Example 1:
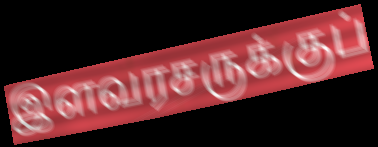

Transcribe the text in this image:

இளவரசருக்குப்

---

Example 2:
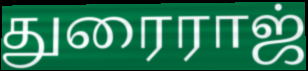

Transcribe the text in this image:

துரைராஜ்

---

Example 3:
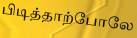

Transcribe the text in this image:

பிடித்தாற்போலே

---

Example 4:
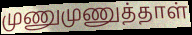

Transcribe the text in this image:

முணுமுணுத்தாள்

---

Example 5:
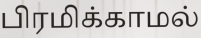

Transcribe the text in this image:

பிரமிக்காமல்